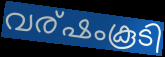
വര്ഷംകൂടി